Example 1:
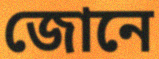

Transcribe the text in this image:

জোনে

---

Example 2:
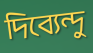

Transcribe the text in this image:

দিব্যেন্দু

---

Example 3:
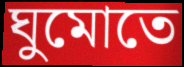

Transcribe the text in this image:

ঘুমোতে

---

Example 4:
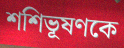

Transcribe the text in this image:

শশিভূষণকে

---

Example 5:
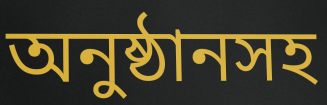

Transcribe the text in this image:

অনুষ্ঠানসহ